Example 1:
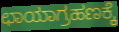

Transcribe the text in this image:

ಛಾಯಾಗ್ರಹಣಕ್ಕೆ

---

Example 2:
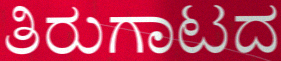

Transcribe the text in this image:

ತಿರುಗಾಟದ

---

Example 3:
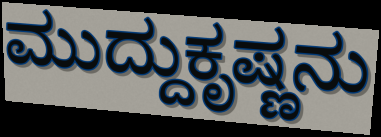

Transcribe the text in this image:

ಮುದ್ದುಕೃಷ್ಣನು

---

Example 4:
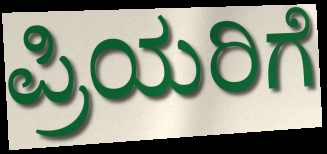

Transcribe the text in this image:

ಪ್ರಿಯರಿಗೆ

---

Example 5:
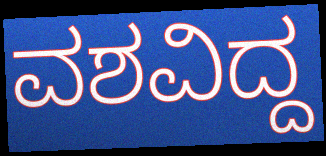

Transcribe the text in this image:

ವಶವಿದ್ದ